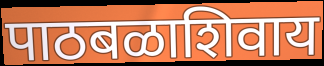
पाठबळाशिवाय